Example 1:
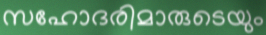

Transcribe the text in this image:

സഹോദരിമാരുടെയും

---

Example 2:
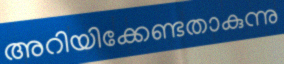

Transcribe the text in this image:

അറിയിക്കേണ്ടതാകുന്നു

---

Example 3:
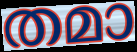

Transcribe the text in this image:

തമാ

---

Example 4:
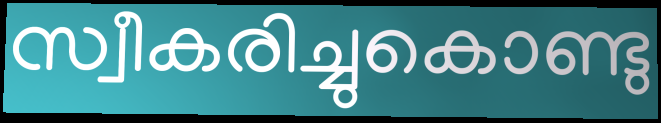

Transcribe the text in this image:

സ്വീകരിച്ചുകൊണ്ടു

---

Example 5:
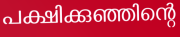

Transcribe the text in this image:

പക്ഷിക്കുഞ്ഞിന്റെ